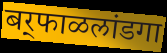
बर्फाळलांडगा